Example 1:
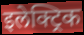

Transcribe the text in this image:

इलेक्ट्रिक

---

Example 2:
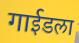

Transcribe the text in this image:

गाईडला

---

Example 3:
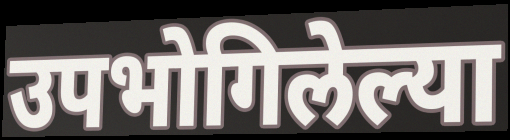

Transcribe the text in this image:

उपभोगिलेल्या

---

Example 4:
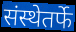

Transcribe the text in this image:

संस्थेतर्फे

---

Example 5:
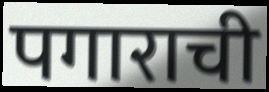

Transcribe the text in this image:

पगाराची